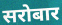
सरोबार